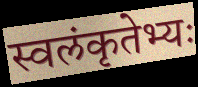
स्वलंकृतेभ्यः